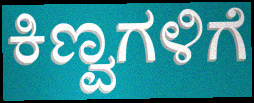
ಕಿಣ್ವಗಳಿಗೆ